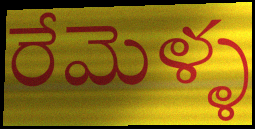
రేమెళ్ళ